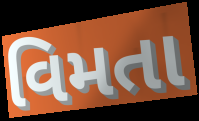
વિમતા